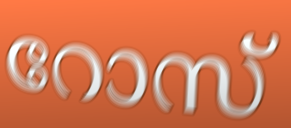
റോസ്